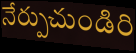
నేర్పుచుండిరి